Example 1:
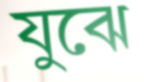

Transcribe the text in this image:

যুঝে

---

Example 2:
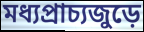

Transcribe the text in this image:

মধ্যপ্রাচ্যজুড়ে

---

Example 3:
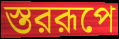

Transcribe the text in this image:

স্তররূপে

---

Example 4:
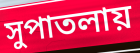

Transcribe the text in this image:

সুপাতলায়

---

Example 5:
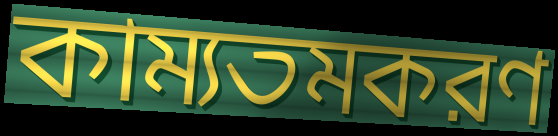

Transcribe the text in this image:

কাম্যতমকরণ